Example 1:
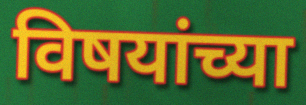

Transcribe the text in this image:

विषयांच्या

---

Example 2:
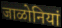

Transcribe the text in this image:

जाळोनियां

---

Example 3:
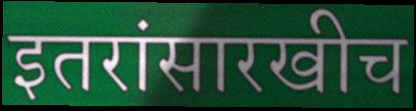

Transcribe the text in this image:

इतरांसारखीच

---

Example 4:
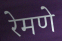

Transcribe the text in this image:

रेमणे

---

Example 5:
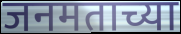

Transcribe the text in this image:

जनमताच्या